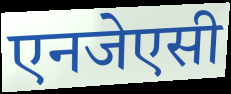
एनजेएसी